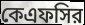
কেএফসির